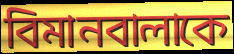
বিমানবালাকে